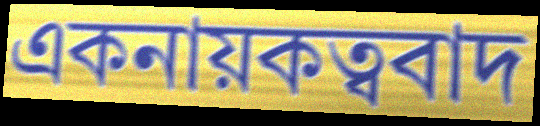
একনায়কত্ববাদ